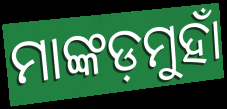
ମାଙ୍କଡ଼ମୁହାଁ